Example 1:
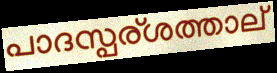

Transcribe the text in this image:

പാദസ്പര്ശത്താല്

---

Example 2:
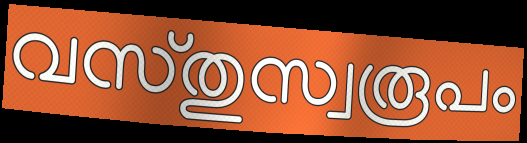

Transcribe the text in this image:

വസ്തുസ്വരൂപം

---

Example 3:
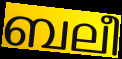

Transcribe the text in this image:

ബലീ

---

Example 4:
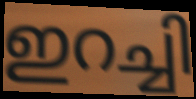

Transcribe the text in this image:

ഇറച്ചി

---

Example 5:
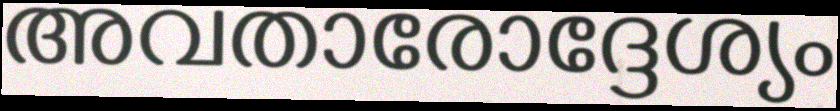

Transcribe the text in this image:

അവതാരോദ്ദേശ്യം